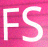
FS